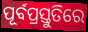
ପୂର୍ବପ୍ରସ୍ତୁତିରେ